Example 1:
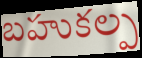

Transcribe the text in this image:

బహుకల్ప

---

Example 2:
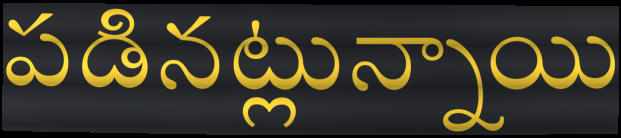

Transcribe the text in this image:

పడినట్లున్నాయి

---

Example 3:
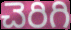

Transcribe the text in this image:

చెరిగి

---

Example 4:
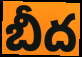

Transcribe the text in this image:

బీద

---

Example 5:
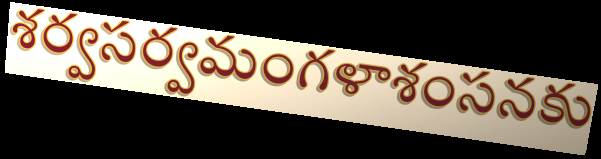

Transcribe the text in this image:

శర్వసర్వమంగళాశంసనకు